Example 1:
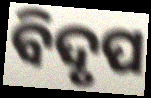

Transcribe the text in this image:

ବିଦୃପ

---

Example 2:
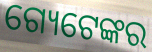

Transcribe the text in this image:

ଗ୍ୟେଟେଙ୍କର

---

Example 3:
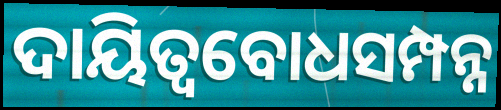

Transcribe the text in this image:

ଦାୟିତ୍ୱବୋଧସମ୍ପନ୍ନ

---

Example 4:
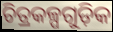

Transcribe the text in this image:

ଚିତ୍ରକଳ୍ପଗୁଡ଼ିକ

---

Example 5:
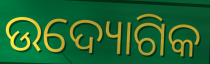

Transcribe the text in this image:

ଉଦ୍ୟୋଗିକ